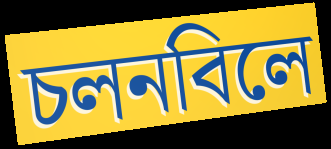
চলনবিলে